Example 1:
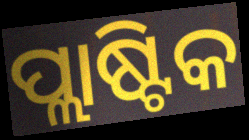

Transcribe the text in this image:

ପ୍ଲାଷ୍ଟିକ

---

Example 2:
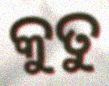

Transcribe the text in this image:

କୁତୁ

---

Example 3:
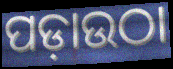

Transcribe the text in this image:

ପଡ଼ାଉଠା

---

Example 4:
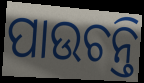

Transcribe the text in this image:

ପାଉଚନ୍ତି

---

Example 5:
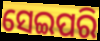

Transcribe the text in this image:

ସେଇପରି